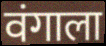
वंगाला